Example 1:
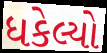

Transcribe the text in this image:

ધકેલ્યો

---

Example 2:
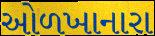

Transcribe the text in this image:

ઓળખાનારા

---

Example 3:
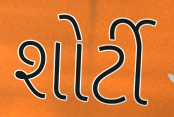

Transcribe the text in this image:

શોર્ટી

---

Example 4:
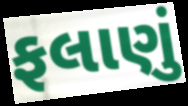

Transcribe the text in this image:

ફલાણું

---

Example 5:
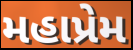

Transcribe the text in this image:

મહાપ્રેમ